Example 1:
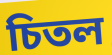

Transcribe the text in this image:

চিতল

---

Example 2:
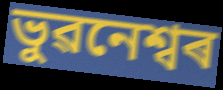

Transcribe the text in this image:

ভুৱনেশ্বৰ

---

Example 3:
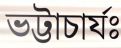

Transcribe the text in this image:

ভট্টাচাৰ্যঃ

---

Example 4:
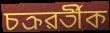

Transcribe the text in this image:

চক্ৰৱৰ্তীক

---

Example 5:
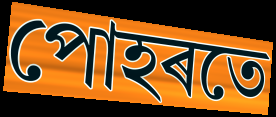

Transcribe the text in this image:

পোহৰতে